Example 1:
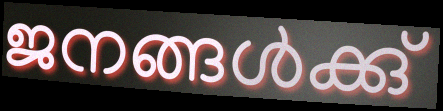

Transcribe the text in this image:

ജനങ്ങൾക്കു്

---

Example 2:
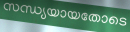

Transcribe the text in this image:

സന്ധ്യയായതോടെ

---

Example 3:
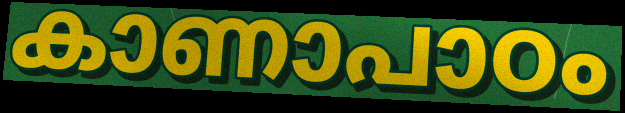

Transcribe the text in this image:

കാണാപാഠം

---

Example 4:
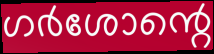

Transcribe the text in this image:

ഗർശോന്റെ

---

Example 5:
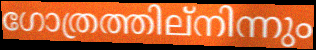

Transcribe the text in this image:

ഗോത്രത്തില്നിന്നും